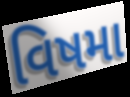
વિષમા